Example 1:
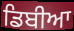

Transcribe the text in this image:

ਡਿਬੀਆ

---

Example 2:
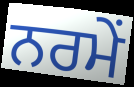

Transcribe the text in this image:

ਨਰਮੇਂ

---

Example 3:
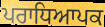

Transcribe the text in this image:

ਪਰਾਧਿਆਪਕ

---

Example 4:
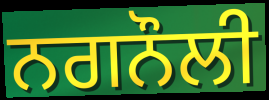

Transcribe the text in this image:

ਨਗਨੌਲੀ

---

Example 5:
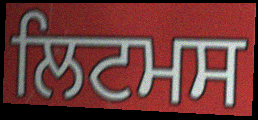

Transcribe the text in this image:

ਲਿਟਮਸ